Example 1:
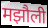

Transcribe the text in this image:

मझौली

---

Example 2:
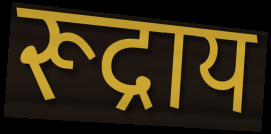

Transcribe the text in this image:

रूद्राय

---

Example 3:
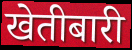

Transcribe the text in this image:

खेतीबारी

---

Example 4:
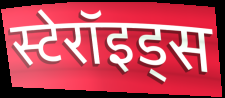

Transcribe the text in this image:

स्टेरॉइड्स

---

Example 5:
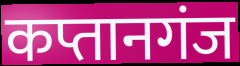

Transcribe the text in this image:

कप्तानगंज